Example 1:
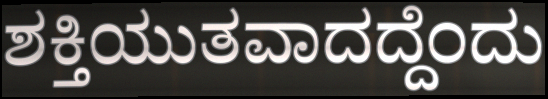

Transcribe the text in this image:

ಶಕ್ತಿಯುತವಾದದ್ದೆಂದು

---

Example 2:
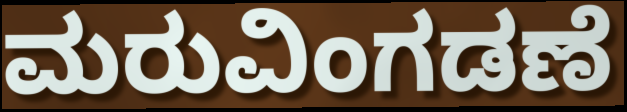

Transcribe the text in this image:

ಮರುವಿಂಗಡಣೆ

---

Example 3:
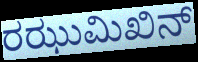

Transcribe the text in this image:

ರಝುಮಿಖಿನ್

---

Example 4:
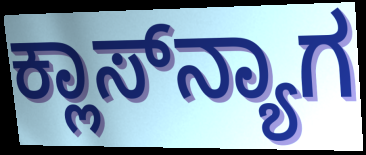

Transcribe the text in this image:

ಕ್ಲಾಸ್‌ನ್ಯಾಗ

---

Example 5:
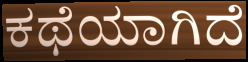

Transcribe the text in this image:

ಕಥೆಯಾಗಿದೆ